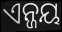
ଏନ୍ଜୟ